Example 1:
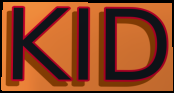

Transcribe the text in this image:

KID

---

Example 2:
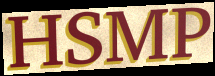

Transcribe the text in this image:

HSMP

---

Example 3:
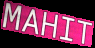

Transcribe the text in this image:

MAHIT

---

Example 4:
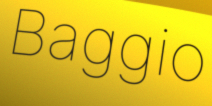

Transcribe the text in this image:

Baggio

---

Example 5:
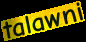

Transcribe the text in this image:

talawni